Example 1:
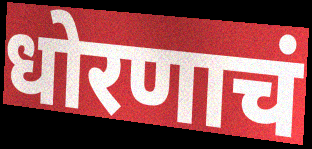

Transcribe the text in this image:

धोरणाचं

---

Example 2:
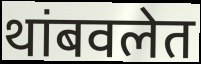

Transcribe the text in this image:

थांबवलेत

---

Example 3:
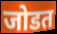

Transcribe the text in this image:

जोडत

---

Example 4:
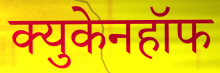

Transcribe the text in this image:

क्युकेनहॉफ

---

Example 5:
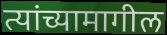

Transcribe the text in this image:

त्यांच्यामागील